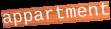
appartment